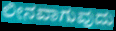
ಲೀನವಾಗುವುದು